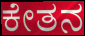
ಕೇತನ